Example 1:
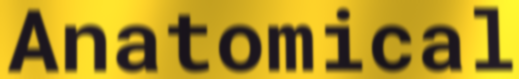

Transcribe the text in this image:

Anatomical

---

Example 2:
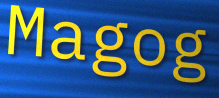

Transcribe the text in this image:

Magog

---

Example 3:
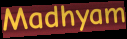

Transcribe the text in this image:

Madhyam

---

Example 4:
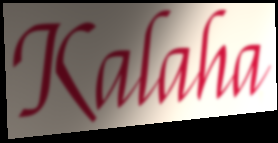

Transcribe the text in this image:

Kalaha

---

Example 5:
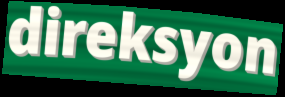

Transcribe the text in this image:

direksyon